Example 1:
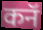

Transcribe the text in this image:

कनॅ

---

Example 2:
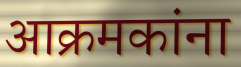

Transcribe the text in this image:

आक्रमकांना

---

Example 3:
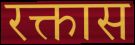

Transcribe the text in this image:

रक्तास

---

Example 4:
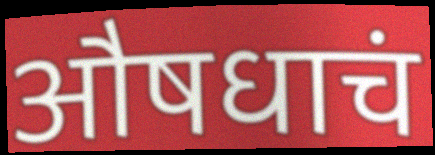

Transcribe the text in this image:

औषधाचं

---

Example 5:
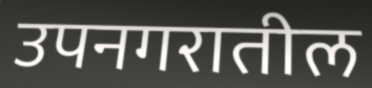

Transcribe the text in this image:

उपनगरातील